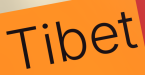
Tibet